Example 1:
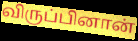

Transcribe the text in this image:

விருப்பினான்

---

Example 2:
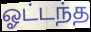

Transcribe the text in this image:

ஓட்டந்த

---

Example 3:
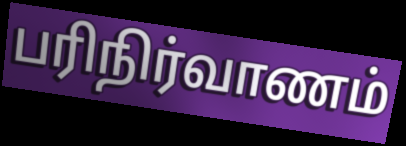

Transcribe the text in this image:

பரிநிர்வாணம்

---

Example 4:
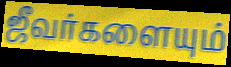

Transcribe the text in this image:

ஜீவர்களையும்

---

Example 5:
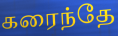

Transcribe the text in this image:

கரைந்தே